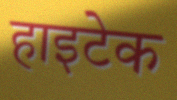
हाइटेक